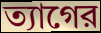
ত্যাগের